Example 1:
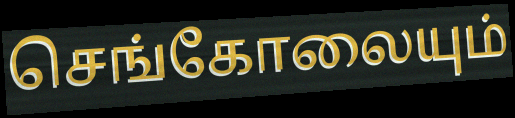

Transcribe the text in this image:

செங்கோலையும்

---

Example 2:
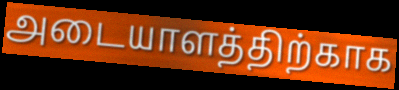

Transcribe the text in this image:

அடையாளத்திற்காக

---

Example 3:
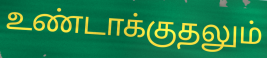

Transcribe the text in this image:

உண்டாக்குதலும்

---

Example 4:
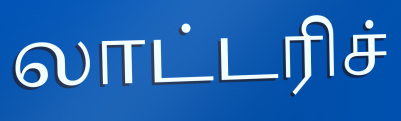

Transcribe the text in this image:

லாட்டரிச்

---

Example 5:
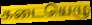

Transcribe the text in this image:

கடையெழு